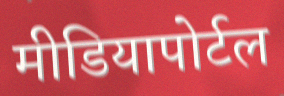
मीडियापोर्टल